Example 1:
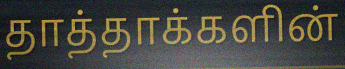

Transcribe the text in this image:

தாத்தாக்களின்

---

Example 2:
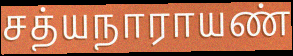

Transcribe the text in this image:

சத்யநாராயண்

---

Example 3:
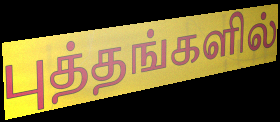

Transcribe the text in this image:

புத்தங்களில்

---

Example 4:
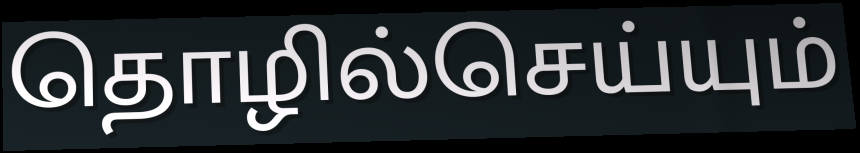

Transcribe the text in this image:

தொழில்செய்யும்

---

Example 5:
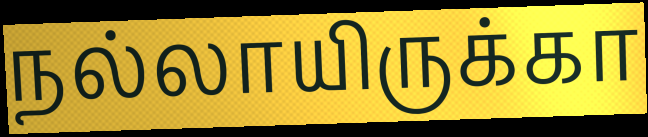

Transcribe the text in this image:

நல்லாயிருக்கா